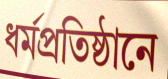
ধর্মপ্রতিষ্ঠানে